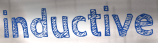
inductive